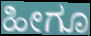
ಹೀಗೂ